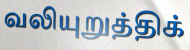
வலியுறுத்திக்